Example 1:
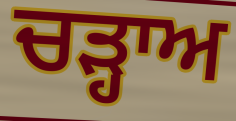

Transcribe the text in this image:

ਚੜ੍ਹਾਅ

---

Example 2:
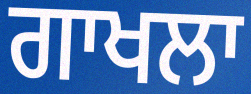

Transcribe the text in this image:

ਗਾਖਲਾ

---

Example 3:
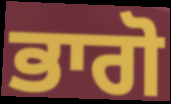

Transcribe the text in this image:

ਭਾਗੋ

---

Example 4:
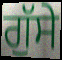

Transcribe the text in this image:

ਗੁੱਸੇ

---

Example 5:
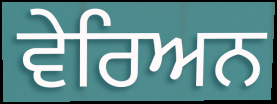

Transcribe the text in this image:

ਵੇਰਿਅਨ